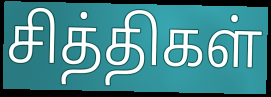
சித்திகள்